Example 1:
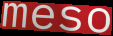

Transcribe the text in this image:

meso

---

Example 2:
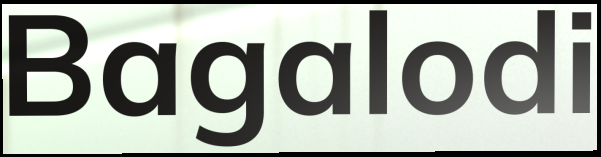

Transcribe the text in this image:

Bagalodi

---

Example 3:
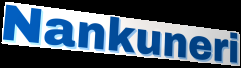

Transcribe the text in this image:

Nankuneri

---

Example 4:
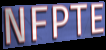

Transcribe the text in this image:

NFPTE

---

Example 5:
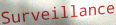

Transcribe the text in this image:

Surveillance